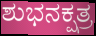
ಶುಭನಕ್ಷತ್ರ